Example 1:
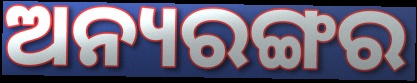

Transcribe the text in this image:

ଅନ୍ୟରଙ୍ଗର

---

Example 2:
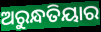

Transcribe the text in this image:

ଅରୁନ୍ଧତିୟାର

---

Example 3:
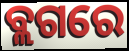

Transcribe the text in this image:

ବ୍ଲଗରେ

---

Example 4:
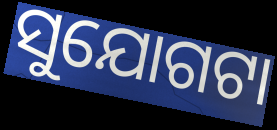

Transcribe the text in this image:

ସୁଯୋଗଟା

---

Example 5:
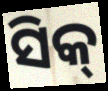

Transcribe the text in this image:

ସିକ୍